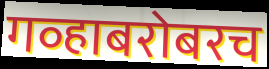
गव्हाबरोबरच